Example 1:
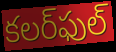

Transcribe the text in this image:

కలర్‌ఫుల్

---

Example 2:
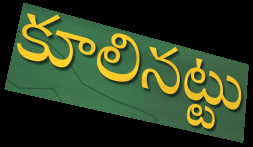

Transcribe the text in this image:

కూలినట్టు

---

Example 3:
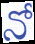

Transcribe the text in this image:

నో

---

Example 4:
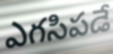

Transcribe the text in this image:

ఎగసిపడే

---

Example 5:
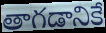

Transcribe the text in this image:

తాగడానికే